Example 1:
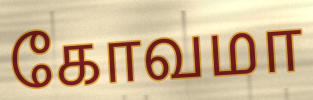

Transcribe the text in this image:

கோவமா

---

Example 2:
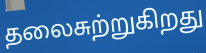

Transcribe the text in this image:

தலைசுற்றுகிறது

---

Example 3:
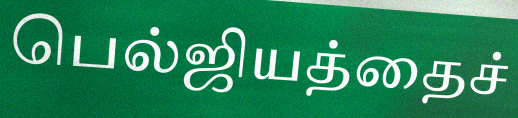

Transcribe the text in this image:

பெல்ஜியத்தைச்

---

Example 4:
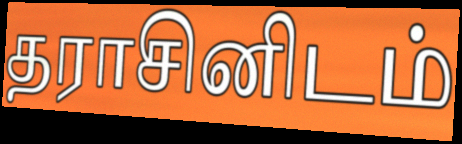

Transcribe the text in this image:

தராசினிடம்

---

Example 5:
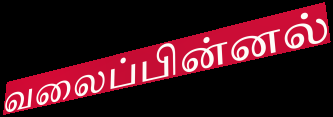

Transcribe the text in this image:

வலைப்பின்னல்